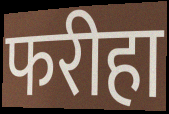
फरीहा